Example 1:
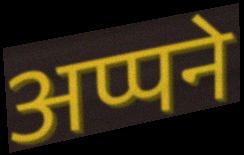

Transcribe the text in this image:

अप्पने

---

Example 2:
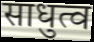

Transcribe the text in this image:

साधुत्व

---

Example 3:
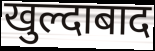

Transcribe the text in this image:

खुल्दाबाद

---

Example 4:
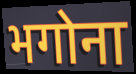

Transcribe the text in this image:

भगोना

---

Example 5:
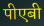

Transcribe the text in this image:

पीएबी